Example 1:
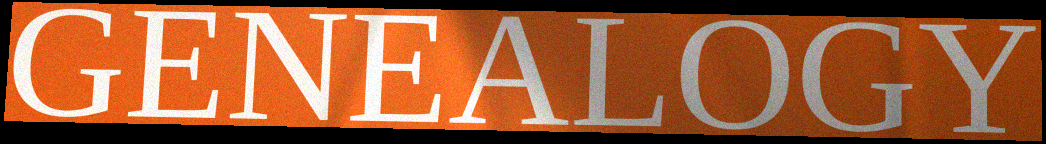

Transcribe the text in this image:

GENEALOGY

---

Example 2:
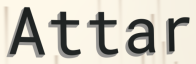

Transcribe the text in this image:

Attar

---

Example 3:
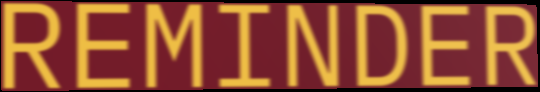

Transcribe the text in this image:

REMINDER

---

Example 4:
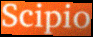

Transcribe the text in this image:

Scipio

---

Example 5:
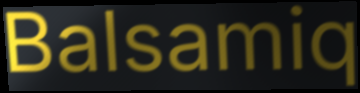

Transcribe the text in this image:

Balsamiq